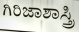
ಗಿರಿಜಾಶಾಸ್ತ್ರಿ